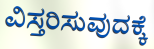
ವಿಸ್ತರಿಸುವುದಕ್ಕೆ